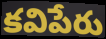
కవిపేరు